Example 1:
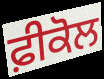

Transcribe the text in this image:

ਫ਼ੀਕੋਲ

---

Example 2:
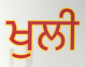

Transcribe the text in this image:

ਖੁਲੀ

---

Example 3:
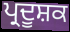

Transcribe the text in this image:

ਪ੍ਰਦੂਸ਼ਕ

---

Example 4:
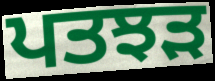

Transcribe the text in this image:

ਪਤਝੜ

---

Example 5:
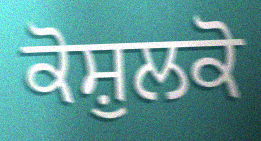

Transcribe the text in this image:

ਕੋਸ਼ੁਲਕੋ